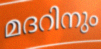
മദറിനും